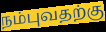
நம்புவதற்கு